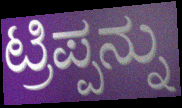
ಟ್ರಿಪ್ಪನ್ನು